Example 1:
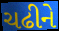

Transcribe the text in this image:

ચઢીને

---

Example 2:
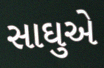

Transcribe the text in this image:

સાઘુએ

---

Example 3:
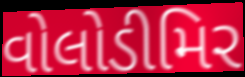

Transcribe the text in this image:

વોલોડીમિર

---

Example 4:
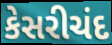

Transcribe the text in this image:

કેસરીચંદ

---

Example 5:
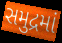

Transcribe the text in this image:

સમુદ્રમાં